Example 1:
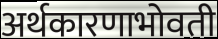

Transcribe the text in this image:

अर्थकारणाभोवती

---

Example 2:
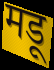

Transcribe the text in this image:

मडू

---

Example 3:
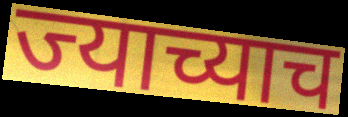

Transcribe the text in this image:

ज्याच्याच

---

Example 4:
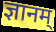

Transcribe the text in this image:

ज्ञानम्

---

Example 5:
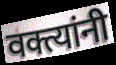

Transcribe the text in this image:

वक्त्यांनी